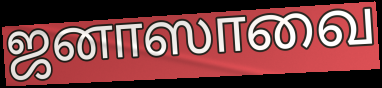
ஜனாஸாவை